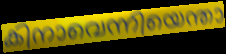
കിനാവെന്നിയെന്താ